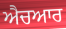
ਐਚਆਰ